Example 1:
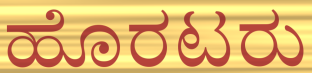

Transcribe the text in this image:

ಹೊರಟರು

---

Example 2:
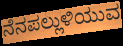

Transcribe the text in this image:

ನೆನಪಲ್ಲುಳಿಯುವ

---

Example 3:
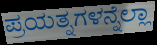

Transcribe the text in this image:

ಪ್ರಯತ್ನಗಳನ್ನೆಲ್ಲಾ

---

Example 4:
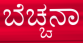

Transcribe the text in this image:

ಬೆಚ್ಚನಾ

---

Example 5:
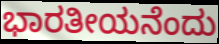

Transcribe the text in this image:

ಭಾರತೀಯನೆಂದು